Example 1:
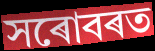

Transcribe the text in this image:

সৰোবৰত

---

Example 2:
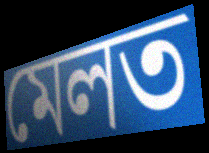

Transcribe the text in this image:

মেলত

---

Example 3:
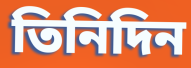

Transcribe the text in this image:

তিনিদিন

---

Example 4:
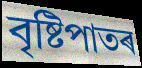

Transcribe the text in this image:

বৃষ্টিপাতৰ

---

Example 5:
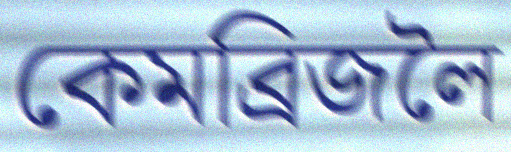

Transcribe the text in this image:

কেমব্ৰিজলৈ